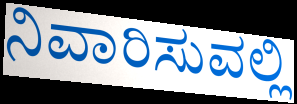
ನಿವಾರಿಸುವಲ್ಲಿ